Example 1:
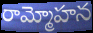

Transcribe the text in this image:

రామ్మోహన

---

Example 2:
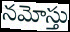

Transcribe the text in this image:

నమోస్తు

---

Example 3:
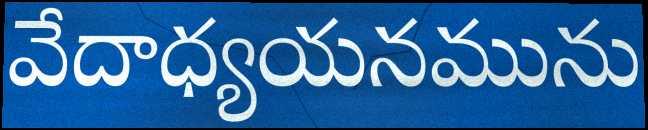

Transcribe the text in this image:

వేదాధ్యయనమును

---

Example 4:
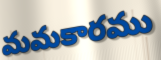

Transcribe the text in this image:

మమకారము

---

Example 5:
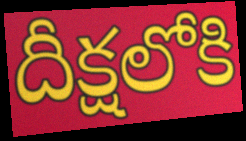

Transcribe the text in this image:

దీక్షలోకి